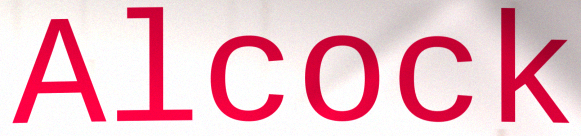
Alcock